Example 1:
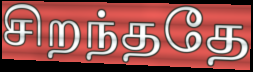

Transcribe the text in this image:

சிறந்ததே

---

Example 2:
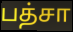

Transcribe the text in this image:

பத்சா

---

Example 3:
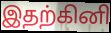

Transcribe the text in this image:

இதற்கினி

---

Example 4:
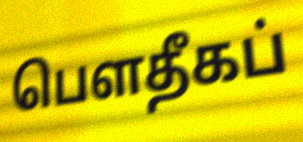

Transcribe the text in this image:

பௌதீகப்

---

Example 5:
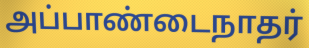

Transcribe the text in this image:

அப்பாண்டைநாதர்